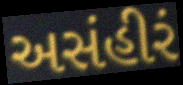
અસંહીરં